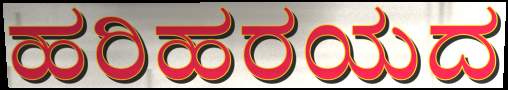
ಹರಿಹರಯದ